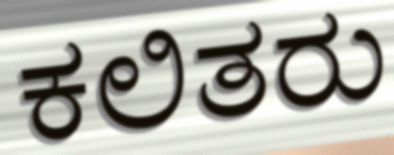
ಕಲಿತರು